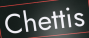
Chettis